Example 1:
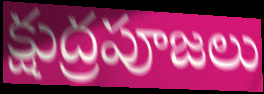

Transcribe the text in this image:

క్షుద్రపూజలు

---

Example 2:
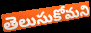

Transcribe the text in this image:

తెలుసుకోమని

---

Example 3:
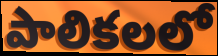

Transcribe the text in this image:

పాలికలలో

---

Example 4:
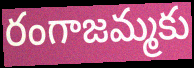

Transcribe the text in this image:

రంగాజమ్మకు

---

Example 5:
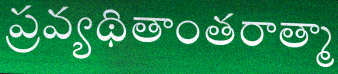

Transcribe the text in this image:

ప్రవ్యథితాంతరాత్మా